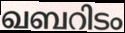
ഖബറിടം